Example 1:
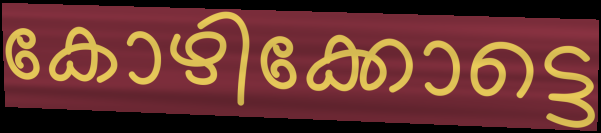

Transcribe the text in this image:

കോഴിക്കോട്ടെ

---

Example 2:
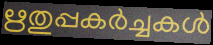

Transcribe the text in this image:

ഋതുപ്പകർച്ചകൾ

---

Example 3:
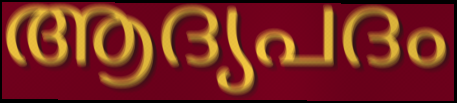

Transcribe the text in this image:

ആദ്യപദം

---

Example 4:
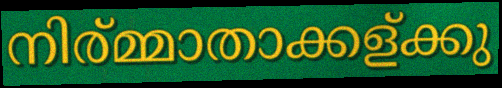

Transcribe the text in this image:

നിര്മ്മാതാക്കള്ക്കു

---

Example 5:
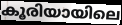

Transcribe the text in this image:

കൂരിയായിലെ